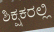
ಶಿಕ್ಷಕರಲ್ಲಿ